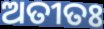
ଅତୀତଃ